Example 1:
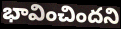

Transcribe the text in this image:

భావించిందని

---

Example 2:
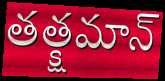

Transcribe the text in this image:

తత్క్షమాన్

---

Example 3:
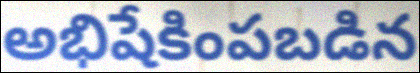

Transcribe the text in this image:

అభిషేకింపబడిన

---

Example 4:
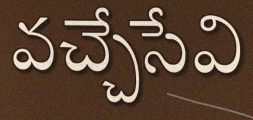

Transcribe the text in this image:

వచ్చేసేవి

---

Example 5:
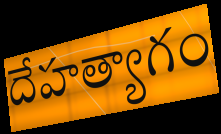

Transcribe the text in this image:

దేహత్యాగం